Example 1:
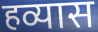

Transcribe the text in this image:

हव्यास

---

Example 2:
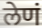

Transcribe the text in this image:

लेणं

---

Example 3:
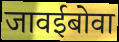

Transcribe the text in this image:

जावईबोवा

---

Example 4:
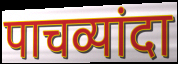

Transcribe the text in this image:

पाचव्यांदा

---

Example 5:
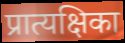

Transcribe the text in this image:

प्रात्यक्षिका